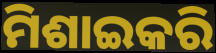
ମିଶାଇକରି